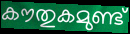
കൗതുകമുണ്ട്